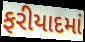
ફરીયાદમાં